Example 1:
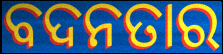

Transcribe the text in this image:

ବଦନତାର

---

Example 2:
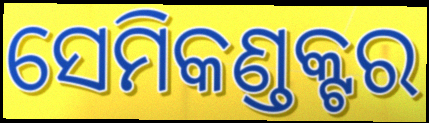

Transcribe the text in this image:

ସେମିକଣ୍ଡକ୍ଟର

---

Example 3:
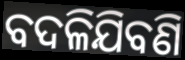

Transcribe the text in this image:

ବଦଳିଯିବଣି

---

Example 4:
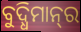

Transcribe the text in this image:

ବୁଦ୍ଧିମାନ୍‍ର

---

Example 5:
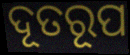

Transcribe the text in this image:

ଦୂତରୂପ